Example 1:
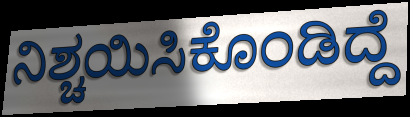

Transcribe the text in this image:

ನಿಶ್ಚಯಿಸಿಕೊಂಡಿದ್ದೆ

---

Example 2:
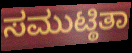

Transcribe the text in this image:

ಸಮುಟ್ಠಿತಾ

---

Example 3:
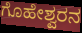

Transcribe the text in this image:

ಗೊಹೇಶ್ವರನ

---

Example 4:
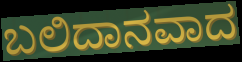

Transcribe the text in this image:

ಬಲಿದಾನವಾದ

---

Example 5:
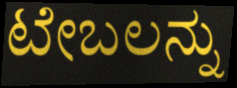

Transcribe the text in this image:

ಟೇಬಲನ್ನು